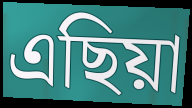
এছিয়া